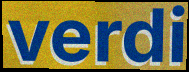
verdi